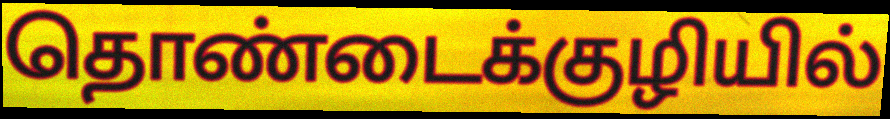
தொண்டைக்குழியில்